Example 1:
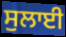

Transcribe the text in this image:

ਸੁਲਾਈ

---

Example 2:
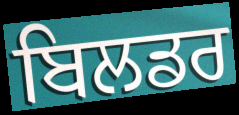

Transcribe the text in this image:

ਬਿਲਡਰ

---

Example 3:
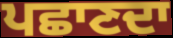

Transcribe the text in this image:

ਪਛਾਣਦਾ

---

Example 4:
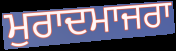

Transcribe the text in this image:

ਮੁਰਾਦਮਾਜਰਾ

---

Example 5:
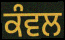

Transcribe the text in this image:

ਕੰਵਲ